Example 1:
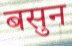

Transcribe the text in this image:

बसुन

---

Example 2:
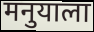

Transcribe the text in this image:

मनुयाला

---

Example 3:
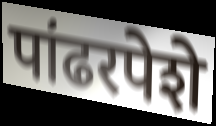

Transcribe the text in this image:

पांढरपेशे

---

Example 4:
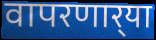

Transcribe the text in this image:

वापरणार्‍या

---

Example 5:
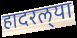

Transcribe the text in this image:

हादरल्या